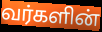
வர்களின்